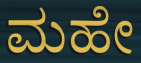
ಮಹೇ